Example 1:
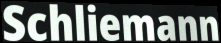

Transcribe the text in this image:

Schliemann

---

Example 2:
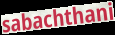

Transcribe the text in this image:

sabachthani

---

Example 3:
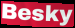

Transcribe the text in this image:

Besky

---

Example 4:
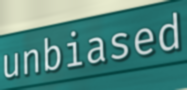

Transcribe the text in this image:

unbiased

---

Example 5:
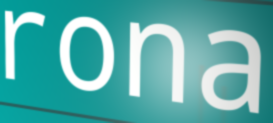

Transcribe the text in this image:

rona